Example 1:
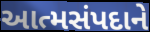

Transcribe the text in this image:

આત્મસંપદાને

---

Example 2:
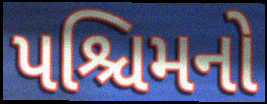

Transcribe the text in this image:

પશ્ચિમનો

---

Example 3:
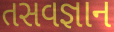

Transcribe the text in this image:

તસવજ્ઞાન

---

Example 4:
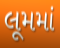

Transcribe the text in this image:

લૂમમાં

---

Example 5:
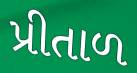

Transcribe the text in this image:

પ્રીતાળ